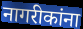
नागरीकांना